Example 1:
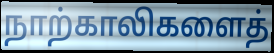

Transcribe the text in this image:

நாற்காலிகளைத்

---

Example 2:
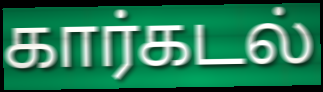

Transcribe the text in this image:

கார்கடல்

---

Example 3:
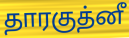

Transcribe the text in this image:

தாரகுத்னீ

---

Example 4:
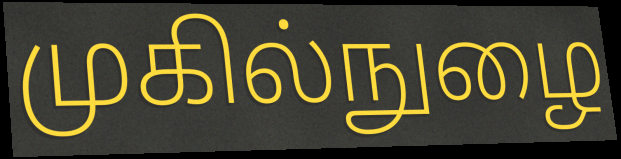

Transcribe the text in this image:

முகில்நுழை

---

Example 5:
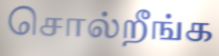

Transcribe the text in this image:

சொல்றீங்க